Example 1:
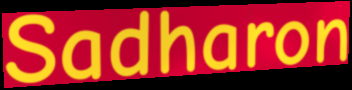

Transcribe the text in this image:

Sadharon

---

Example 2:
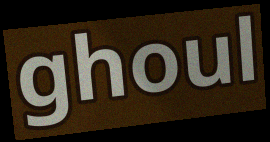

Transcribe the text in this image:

ghoul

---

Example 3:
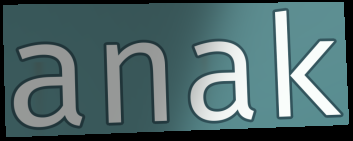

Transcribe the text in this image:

anak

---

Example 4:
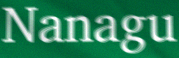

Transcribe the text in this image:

Nanagu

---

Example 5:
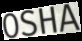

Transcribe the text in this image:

OSHA